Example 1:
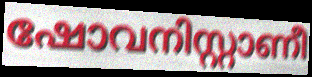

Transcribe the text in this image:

ഷോവനിസ്റ്റാണീ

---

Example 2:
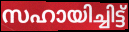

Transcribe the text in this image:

സഹായിച്ചിട്ട്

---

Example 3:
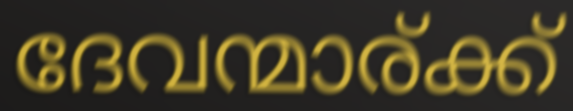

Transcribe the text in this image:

ദേവന്മാര്ക്ക്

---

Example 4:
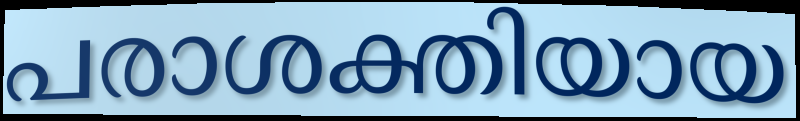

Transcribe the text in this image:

പരാശക്തിയായ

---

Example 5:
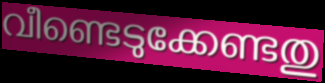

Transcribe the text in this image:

വീണ്ടെടുക്കേണ്ടതു